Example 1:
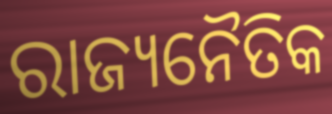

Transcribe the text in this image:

ରାଜ୍ୟନୈତିକ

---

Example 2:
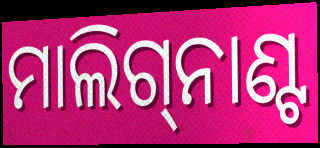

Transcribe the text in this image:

ମାଲିଗ୍‌ନାଣ୍ଟ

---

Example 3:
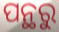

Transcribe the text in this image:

ପନ୍ଥରୁ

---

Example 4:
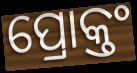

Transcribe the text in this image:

ପ୍ରୋକ୍ତଂ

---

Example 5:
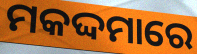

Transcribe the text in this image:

ମକଦ୍ଦମାରେ